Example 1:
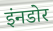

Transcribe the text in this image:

इंनडोर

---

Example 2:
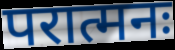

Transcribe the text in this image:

परात्मनः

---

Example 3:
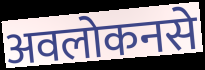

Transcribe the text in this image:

अवलोकनसे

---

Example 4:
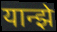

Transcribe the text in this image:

यान्झे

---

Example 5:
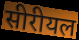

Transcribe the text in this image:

सीरीयल